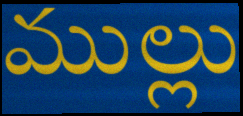
ముల్లు